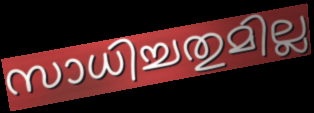
സാധിച്ചതുമില്ല